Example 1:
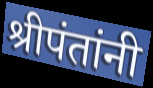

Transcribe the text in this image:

श्रीपंतांनी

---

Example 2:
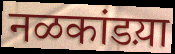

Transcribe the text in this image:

नळकांडय़ा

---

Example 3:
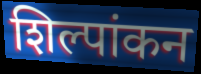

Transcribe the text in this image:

शिल्पांकन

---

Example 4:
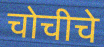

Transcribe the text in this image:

चोचीचे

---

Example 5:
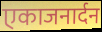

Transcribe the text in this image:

एकाजनार्दन